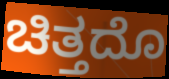
ಚಿತ್ತದೊ